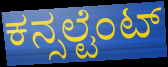
ಕನ್ಸಲ್ಟೆಂಟ್